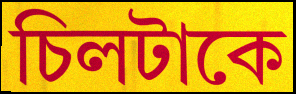
চিলটাকে